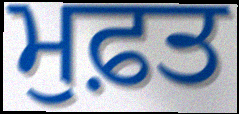
ਮੁਫ਼ਤ